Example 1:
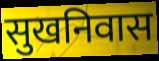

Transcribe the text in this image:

सुखनिवास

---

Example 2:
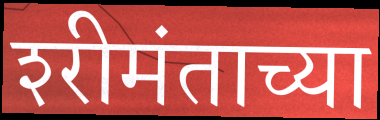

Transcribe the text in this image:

श्रीमंताच्या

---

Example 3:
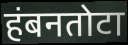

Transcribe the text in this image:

हंबनतोटा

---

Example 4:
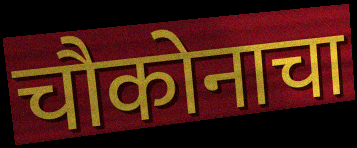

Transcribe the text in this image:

चौकोनाचा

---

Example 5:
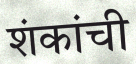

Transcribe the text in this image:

शंकांची